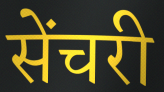
सेंचरी